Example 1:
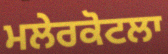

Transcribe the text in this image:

ਮਲੇਰਕੋਟਲਾ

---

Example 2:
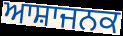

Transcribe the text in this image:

ਆਸ਼ਾਜਨਕ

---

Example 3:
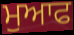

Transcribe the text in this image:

ਮੁਆਫ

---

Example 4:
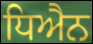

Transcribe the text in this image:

ਧਿਐਨ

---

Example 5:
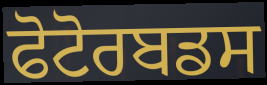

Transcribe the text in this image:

ਫੋਟੋਰਬਡਸ